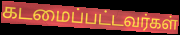
கடமைப்பட்டவர்கள்